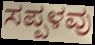
ಸಪ್ಪಳವು